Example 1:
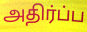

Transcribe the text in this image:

அதிர்ப்ப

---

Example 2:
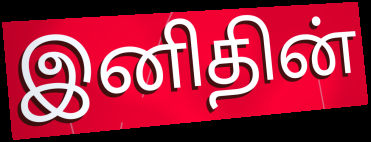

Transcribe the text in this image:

இனிதின்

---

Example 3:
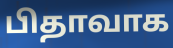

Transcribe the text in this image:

பிதாவாக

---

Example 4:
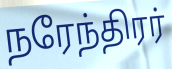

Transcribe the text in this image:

நரேந்திரர்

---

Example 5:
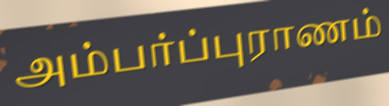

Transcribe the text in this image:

அம்பர்ப்புராணம்